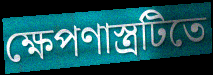
ক্ষেপণাস্ত্রটিতে